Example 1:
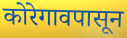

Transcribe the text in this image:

कोरेगावपासून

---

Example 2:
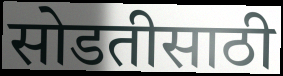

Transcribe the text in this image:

सोडतीसाठी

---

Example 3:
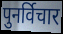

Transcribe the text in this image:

पुनर्विचार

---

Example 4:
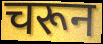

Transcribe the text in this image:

चरून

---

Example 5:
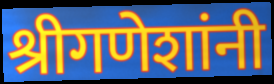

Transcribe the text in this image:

श्रीगणेशांनी